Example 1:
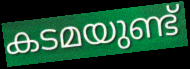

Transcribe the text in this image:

കടമയുണ്ട്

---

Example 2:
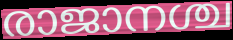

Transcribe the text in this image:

രാജാനശ്ച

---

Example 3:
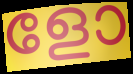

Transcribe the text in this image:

ളോ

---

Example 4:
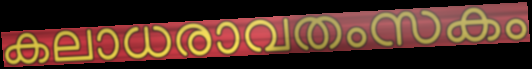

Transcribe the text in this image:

കലാധരാവതംസകം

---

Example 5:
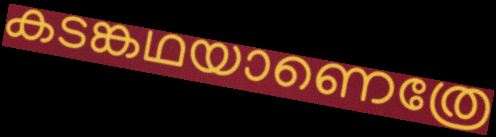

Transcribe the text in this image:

കടങ്കഥയാണെത്രേ